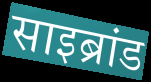
साइब्रांड